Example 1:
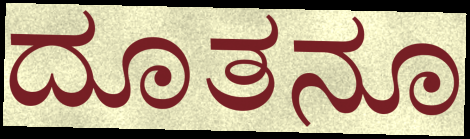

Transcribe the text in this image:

ದೂತನೂ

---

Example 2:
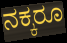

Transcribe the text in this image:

ನಕ್ಕರೂ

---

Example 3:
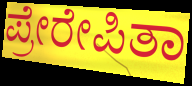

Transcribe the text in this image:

ಪ್ರೇರೇಪಿತಾ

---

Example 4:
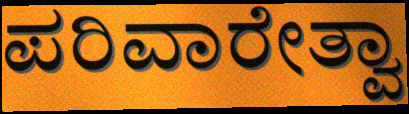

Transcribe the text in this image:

ಪರಿವಾರೇತ್ವಾ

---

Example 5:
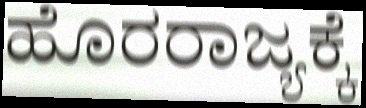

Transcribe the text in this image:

ಹೊರರಾಜ್ಯಕ್ಕೆ